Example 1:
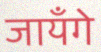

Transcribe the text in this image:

जायँगे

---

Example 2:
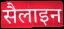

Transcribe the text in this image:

सैलाइन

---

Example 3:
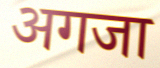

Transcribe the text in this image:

अगजा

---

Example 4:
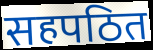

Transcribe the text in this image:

सहपठित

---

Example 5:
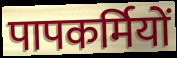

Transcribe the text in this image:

पापकर्मियों